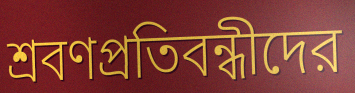
শ্রবণপ্রতিবন্ধীদের